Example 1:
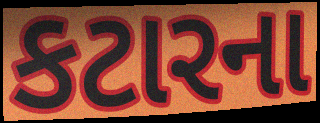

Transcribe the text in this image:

કટારના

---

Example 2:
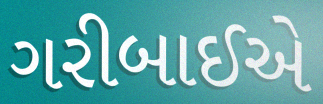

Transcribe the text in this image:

ગરીબાઈએ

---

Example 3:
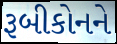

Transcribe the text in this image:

રૂબીકોનને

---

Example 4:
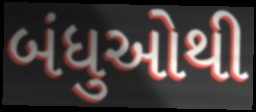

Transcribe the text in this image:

બંધુઓથી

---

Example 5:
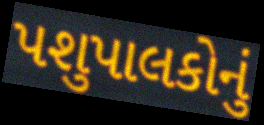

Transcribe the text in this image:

પશુપાલકોનું